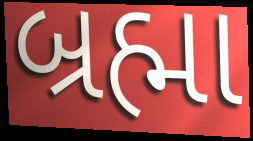
બ્રહ્મા